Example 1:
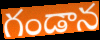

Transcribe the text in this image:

గండాన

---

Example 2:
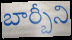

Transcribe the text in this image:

బార్బీని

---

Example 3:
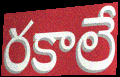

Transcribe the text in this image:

రకాలే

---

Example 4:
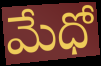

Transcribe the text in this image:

మేధో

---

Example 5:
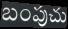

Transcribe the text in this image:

బంపుచు